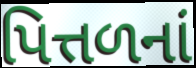
પિત્તળનાં